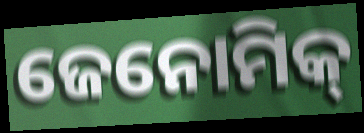
ଜେନୋମିକ୍